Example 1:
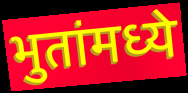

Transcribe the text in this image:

भुतांमध्ये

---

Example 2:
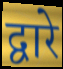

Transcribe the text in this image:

द्वारे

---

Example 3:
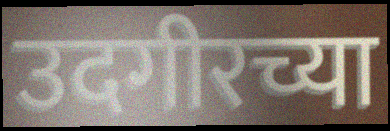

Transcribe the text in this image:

उदगीरच्या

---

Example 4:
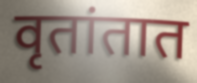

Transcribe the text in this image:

वृतांतात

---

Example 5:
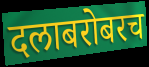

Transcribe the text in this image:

दलाबरोबरच